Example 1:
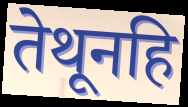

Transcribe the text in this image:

तेथूनहि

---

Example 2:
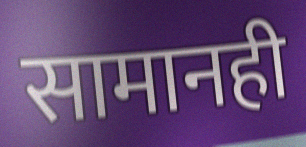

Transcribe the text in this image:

सामानही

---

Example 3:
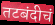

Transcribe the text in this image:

तटबंदीचं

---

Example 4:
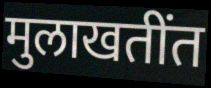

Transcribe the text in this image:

मुलाखतींत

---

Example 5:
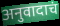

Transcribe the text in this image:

अनुवादाचं